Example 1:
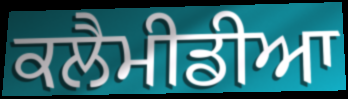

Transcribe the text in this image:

ਕਲੈਮੀਡੀਆ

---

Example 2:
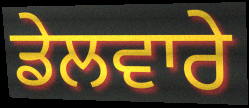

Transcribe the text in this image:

ਡੇਲਵਾਰੇ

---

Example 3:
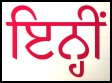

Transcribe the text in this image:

ਇਨ੍ਹੀਂ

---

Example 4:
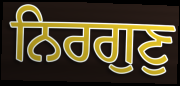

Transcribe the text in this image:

ਨਿਰਗੁਣੁ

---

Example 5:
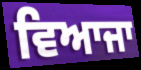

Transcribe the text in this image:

ਵਿਆਜਾ